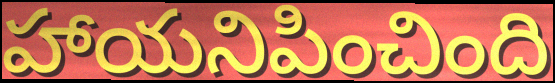
హాయనిపించింది